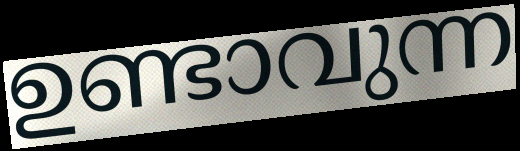
ഉണ്ടാവുന്ന